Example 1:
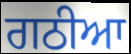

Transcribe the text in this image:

ਗਠੀਆ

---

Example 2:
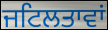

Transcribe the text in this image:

ਜਟਿਲਤਾਵਾਂ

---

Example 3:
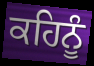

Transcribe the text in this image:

ਕਹਿਨੂੰ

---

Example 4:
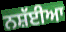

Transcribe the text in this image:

ਨਸ਼ੱਈਆ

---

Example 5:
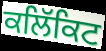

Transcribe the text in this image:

ਕਲਿੱਕਿਟ